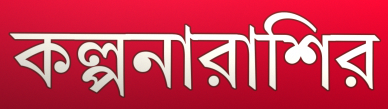
কল্পনারাশির